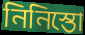
নিনিস্তো